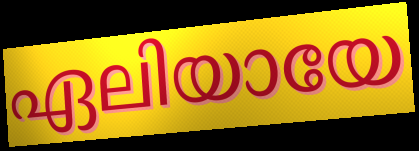
ഏലിയായേ